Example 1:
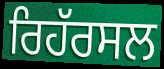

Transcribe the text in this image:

ਰਿਹੱਰਸਲ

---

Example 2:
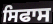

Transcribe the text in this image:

ਸਿਫਾਸ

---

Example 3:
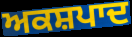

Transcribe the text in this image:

ਅਕਸ਼ਪਾਦ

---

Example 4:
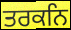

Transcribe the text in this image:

ਤਰਕਨਿ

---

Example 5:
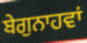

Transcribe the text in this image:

ਬੇਗੁਨਾਹਵਾਂ